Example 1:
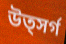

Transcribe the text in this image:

উত্সর্গ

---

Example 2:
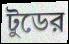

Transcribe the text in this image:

টুডের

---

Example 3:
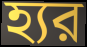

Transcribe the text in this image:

হ্যর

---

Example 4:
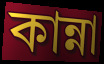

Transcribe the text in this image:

কান্না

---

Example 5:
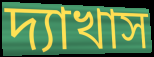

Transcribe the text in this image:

দ্যাখাস